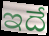
ఇదే